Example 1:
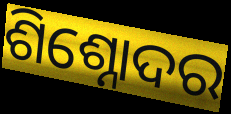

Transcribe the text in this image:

ଶିଶ୍ନୋଦର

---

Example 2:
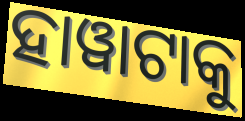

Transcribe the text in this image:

ହାୱାଟାକୁ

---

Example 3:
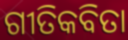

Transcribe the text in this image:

ଗୀତିକବିତା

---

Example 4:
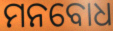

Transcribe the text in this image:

ମନବୋଧ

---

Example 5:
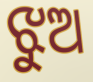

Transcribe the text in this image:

ଝୁଅ